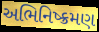
અભિનિષ્ક્રમણ